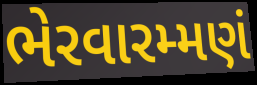
ભેરવારમ્મણં